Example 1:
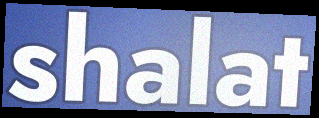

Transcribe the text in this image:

shalat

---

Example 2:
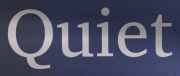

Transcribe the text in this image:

Quiet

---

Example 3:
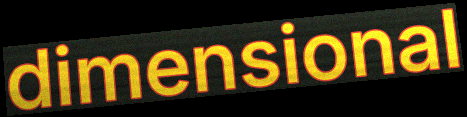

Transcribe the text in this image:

dimensional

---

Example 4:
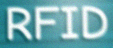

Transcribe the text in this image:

RFID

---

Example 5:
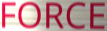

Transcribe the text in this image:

FORCE